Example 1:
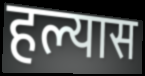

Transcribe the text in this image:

हल्यास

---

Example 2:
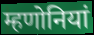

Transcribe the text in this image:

म्हणोनियां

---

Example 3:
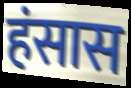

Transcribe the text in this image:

हंसास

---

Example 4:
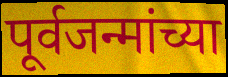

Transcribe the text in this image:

पूर्वजन्मांच्या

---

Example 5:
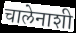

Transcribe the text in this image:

चालेनाशी